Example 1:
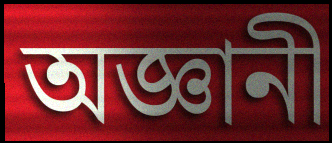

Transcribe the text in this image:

অজ্ঞানী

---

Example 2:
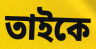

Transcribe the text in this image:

তাইকে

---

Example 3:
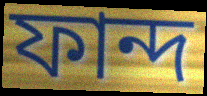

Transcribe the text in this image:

ফান্দ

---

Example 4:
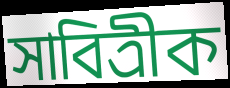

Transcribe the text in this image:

সাবিত্ৰীক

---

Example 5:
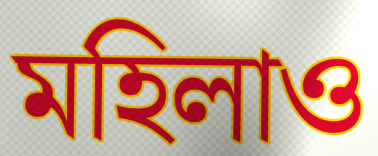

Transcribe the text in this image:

মহিলাও